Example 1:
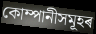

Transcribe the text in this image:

কোম্পানীসমূহৰ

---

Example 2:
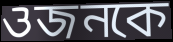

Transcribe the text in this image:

ওজনকে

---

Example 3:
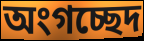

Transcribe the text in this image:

অংগচ্ছেদ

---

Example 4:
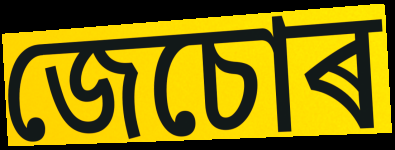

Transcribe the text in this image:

জেচোৰ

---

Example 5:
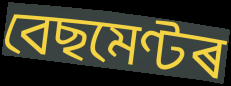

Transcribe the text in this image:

বেছমেণ্টৰ